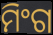
ମିଂଗ